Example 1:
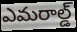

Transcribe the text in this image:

ఎమరాల్డ్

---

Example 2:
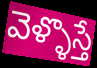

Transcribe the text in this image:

వెళ్ళొస్తే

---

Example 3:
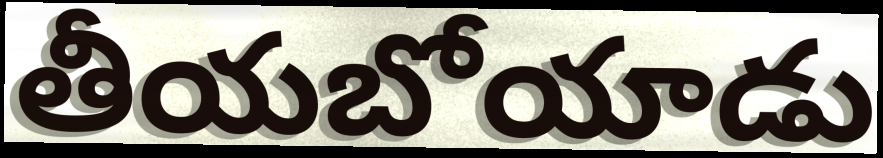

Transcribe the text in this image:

తీయబోయాడు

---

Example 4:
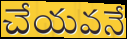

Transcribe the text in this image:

చేయవనే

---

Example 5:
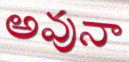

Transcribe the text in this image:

అవునా